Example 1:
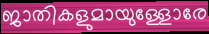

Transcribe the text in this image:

ജാതികളുമായുള്ളോരേ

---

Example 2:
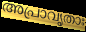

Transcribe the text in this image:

അപ്രാവൃതാഃ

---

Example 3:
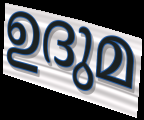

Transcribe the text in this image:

ഉദുമ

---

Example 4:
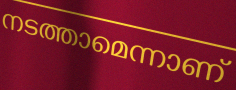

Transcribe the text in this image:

നടത്താമെന്നാണ്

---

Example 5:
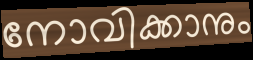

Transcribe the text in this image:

നോവിക്കാനും